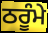
ਠਰੂੰਮੇ